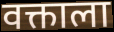
वक्ताला